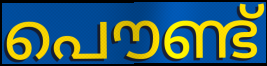
പൌണ്ട്